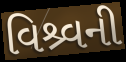
વિશ્ર્વની